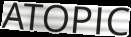
ATOPIC